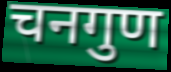
चनगुण